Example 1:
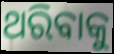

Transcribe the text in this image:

ଥରିବାକୁ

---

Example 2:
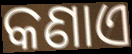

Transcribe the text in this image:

କଣାଏ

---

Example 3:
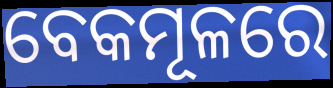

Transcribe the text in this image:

ବେକମୂଳରେ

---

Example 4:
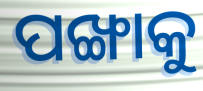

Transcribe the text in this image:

ପଙ୍ଖାକୁ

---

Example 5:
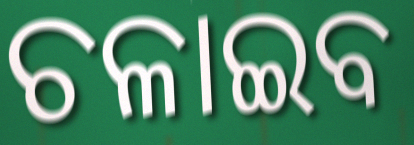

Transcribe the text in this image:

ଚଳାଇବ